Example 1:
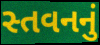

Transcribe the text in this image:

સ્તવનનું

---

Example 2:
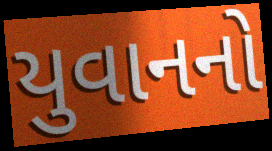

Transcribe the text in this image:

યુવાનનો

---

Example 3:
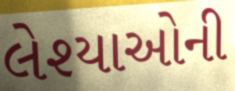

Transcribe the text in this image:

લેશ્યાઓની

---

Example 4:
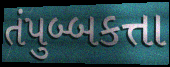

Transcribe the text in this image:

તંપુબ્બકત્તા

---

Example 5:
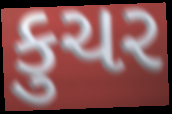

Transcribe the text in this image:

કુચર